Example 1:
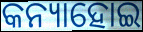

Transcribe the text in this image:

କନ୍ୟାହୋଇ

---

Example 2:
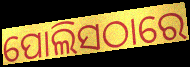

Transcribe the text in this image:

ପୋଲିସଠାରେ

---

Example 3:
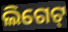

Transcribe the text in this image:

ଲିଗେଟ୍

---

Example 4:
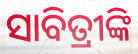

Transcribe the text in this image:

ସାବିତ୍ରୀଙ୍କି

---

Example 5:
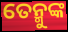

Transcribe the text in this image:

ତେନ୍ମୁଙ୍କ